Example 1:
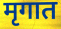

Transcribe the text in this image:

मृगात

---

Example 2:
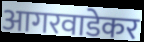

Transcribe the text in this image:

आगरवाडेकर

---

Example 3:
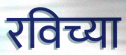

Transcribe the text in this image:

रविच्या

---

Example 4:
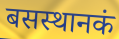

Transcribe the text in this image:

बसस्थानकं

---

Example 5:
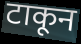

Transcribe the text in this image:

टाकून